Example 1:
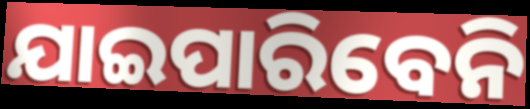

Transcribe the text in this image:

ଯାଇପାରିବେନି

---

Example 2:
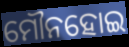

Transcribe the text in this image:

ମୌନହୋଇ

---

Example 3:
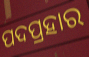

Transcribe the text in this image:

ପଦପ୍ରହାର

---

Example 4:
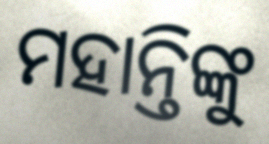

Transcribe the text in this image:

ମହାନ୍ତିଙ୍କୁ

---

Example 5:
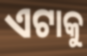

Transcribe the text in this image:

ଏଟାକୁ